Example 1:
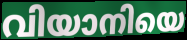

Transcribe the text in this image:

വിയാനിയെ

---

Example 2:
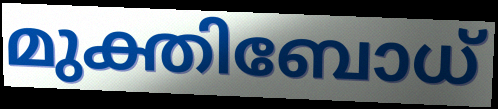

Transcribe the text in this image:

മുക്തിബോധ്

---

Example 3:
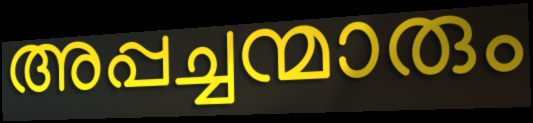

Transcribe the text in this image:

അപ്പച്ചന്മാരും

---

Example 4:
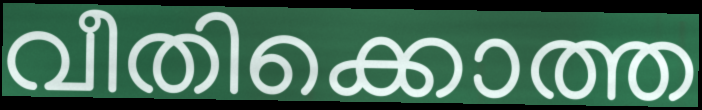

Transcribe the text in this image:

വീതിക്കൊത്ത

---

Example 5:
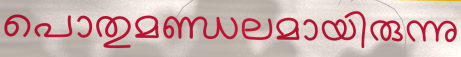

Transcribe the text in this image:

പൊതുമണ്ഡലമായിരുന്നു